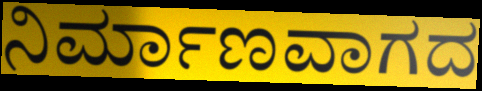
ನಿರ್ಮಾಣವಾಗದ